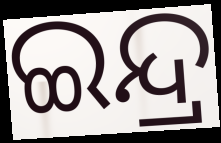
ଇନ୍ଦ୍ର